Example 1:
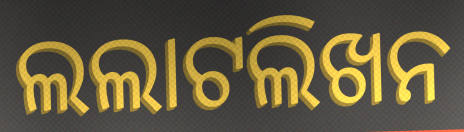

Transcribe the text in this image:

ଲଲାଟଲିଖନ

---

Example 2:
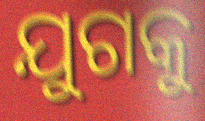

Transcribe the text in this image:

ଯୁଗକୁ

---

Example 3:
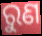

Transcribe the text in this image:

ରୁଣ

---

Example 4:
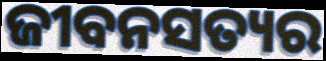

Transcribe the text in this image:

ଜୀବନସତ୍ୟର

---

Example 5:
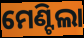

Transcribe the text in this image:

ମେଣ୍ଟିଲା